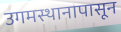
उगमस्थानापासून